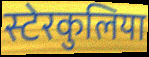
स्टेरकुलिया